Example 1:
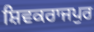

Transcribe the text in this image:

ਸ਼ਿਵਕਰਾਜਪੁਰ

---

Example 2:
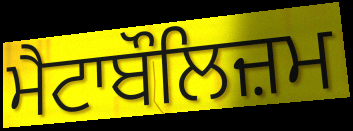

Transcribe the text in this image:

ਮੈਟਾਬੌਲਿਜ਼ਮ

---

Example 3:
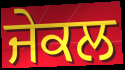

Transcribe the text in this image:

ਜੇਕਲ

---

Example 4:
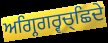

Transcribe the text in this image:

ਅਗ੍ਨਿਗਰ੍ਵਚ੍ਛਿਦੇ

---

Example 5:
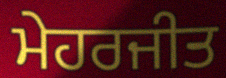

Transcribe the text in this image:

ਮੇਹਰਜੀਤ